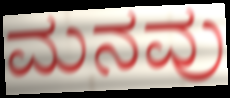
ಮನವು